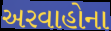
અરવાહોના